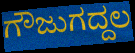
ಗೌಜುಗದ್ದಲ